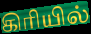
கிரியில்